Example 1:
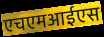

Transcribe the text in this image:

एचएमआईएस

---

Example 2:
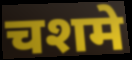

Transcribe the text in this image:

चशमे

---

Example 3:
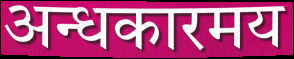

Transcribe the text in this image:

अन्धकारमय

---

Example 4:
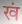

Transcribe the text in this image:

खं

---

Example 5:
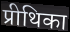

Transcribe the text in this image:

प्रीथिका